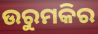
ଉରୁମକିର